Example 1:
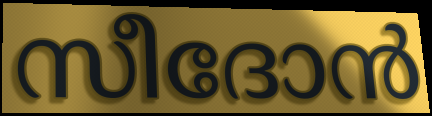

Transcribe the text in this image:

സീദോൻ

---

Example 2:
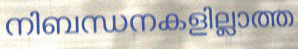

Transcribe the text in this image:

നിബന്ധനകളില്ലാത്ത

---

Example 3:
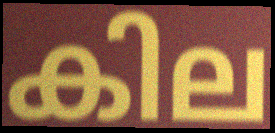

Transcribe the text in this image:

കില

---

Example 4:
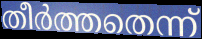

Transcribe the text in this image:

തീർത്തതെന്ന്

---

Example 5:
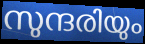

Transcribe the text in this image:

സുന്ദരിയും